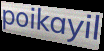
poikayil